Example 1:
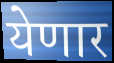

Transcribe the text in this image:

येणार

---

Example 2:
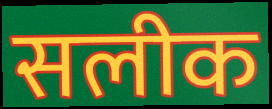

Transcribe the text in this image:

सलीक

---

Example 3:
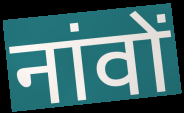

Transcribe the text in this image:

नांवों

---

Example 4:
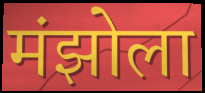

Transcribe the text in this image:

मंझोला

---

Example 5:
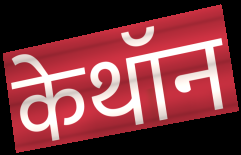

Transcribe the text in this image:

केथॉन